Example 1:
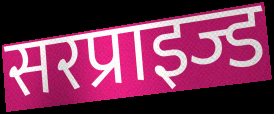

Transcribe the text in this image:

सरप्राइज्ड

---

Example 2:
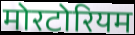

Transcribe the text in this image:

मोरटोरियम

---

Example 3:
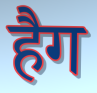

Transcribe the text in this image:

हैग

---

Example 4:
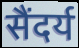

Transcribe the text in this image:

सैंदर्य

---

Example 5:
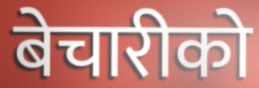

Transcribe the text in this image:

बेचारीको